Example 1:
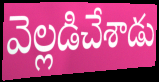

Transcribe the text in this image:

వెల్లడిచేశాడు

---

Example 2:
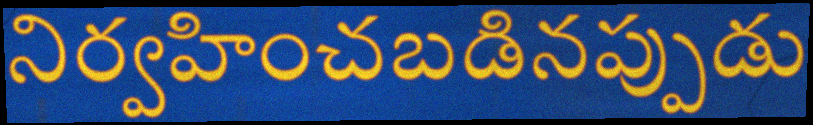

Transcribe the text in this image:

నిర్వహించబడినప్పుడు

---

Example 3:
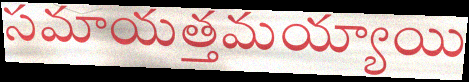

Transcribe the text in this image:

సమాయత్తమయ్యాయి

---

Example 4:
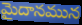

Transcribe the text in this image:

మైదానమున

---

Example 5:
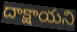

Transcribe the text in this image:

దాక్షాయని